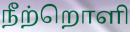
நீற்றொளி